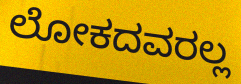
ಲೋಕದವರಲ್ಲ